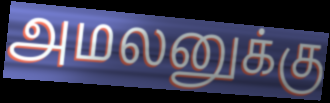
அமலனுக்கு